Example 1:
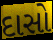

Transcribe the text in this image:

દાસો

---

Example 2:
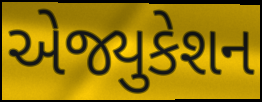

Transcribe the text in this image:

એજ્યુકેશન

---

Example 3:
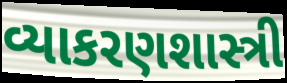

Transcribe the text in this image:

વ્યાકરણશાસ્ત્રી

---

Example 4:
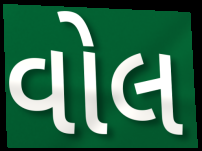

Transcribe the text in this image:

વોલ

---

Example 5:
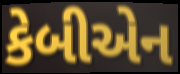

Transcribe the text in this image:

કેબીએન